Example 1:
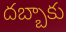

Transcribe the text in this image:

దబ్బాకు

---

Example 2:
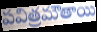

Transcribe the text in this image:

పవిత్రమౌతాయి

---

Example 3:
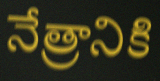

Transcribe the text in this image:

నేత్రానికి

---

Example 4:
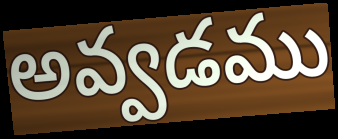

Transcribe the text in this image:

అవ్వడము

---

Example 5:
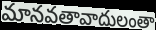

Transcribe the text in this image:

మానవతావాదులంతా